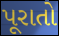
પૂરાતો